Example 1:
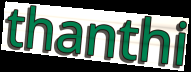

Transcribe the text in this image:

thanthi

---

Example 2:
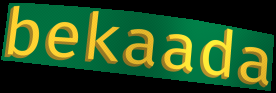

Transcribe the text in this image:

bekaada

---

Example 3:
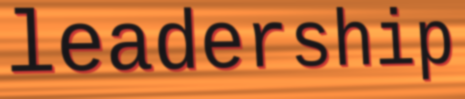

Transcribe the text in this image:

leadership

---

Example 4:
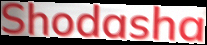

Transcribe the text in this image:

Shodasha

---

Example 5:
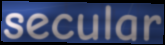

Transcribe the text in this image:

secular